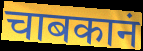
चाबकानं